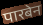
पारबेन